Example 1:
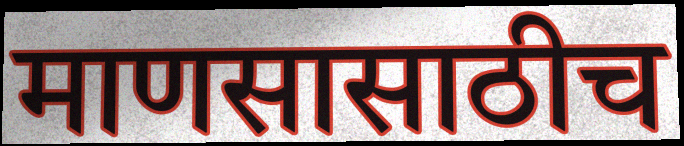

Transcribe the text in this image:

माणसासाठीच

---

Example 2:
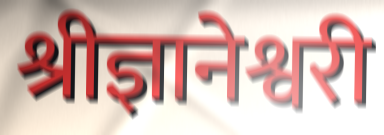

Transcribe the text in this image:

श्रीज्ञानेश्वरी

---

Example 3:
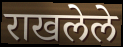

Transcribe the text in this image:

राखलेले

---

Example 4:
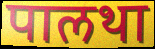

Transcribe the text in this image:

पालथा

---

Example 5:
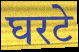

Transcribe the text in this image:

घरटे